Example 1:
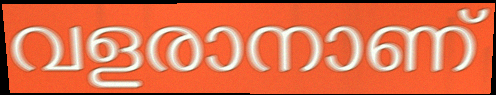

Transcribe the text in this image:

വളരാനാണ്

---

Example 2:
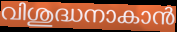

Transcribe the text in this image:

വിശുദ്ധനാകാൻ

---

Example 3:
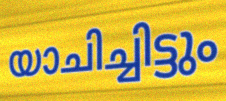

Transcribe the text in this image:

യാചിച്ചിട്ടും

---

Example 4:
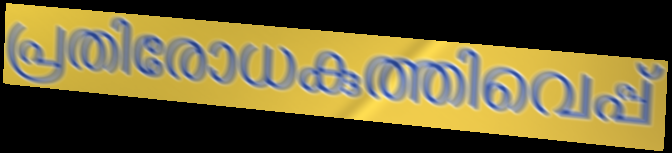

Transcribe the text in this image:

പ്രതിരോധകുത്തിവെപ്പ്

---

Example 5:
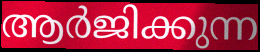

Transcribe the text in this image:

ആർജിക്കുന്ന